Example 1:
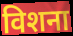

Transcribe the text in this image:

विशना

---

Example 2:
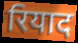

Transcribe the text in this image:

रियाद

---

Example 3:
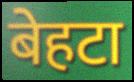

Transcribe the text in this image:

बेहटा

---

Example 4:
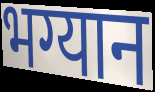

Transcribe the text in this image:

भग्यान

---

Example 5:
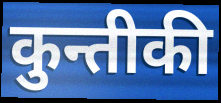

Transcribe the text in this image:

कुन्तीकी